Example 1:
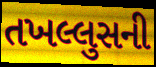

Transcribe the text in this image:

તખલ્લુસની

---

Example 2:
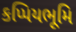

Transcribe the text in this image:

કપ્પિયભૂમિ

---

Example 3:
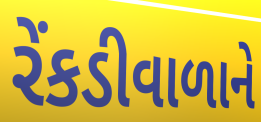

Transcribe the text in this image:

રેંકડીવાળાને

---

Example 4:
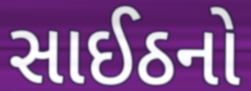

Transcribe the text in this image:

સાઈઠનો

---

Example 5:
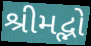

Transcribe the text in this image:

શ્રીમદ્ભો